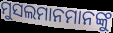
ମୁସଲମାନମାନଙ୍କୁ